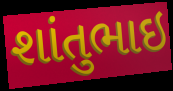
શાંતુભાઇ